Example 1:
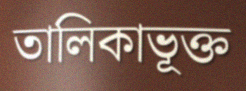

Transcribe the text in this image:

তালিকাভূক্ত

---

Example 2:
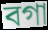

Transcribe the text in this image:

বগা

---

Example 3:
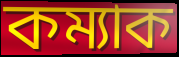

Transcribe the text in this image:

কম্যাক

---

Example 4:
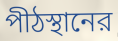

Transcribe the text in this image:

পীঠস্থানের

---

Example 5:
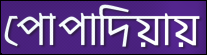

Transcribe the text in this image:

পোপাদিয়ায়